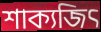
শাক্যজিৎ